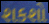
શકશો